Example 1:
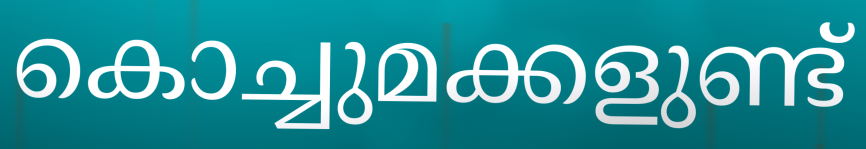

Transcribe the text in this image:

കൊച്ചുമക്കളുണ്ട്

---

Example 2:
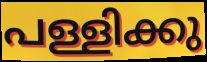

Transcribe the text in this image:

പള്ളിക്കു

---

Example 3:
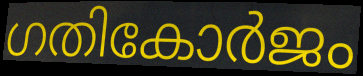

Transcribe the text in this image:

ഗതികോർജം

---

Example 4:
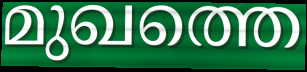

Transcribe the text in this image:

മുഖത്തെ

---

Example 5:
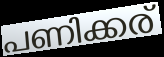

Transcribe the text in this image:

പണിക്കര്